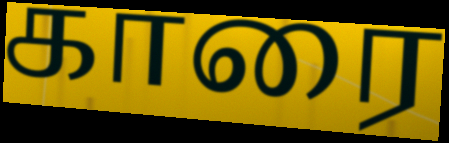
காரை